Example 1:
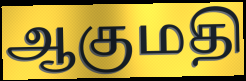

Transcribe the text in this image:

ஆகுமதி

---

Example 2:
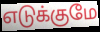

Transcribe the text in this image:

எடுக்குமே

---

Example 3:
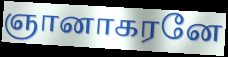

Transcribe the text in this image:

ஞானாகரனே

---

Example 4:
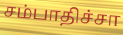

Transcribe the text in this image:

சம்பாதிச்சா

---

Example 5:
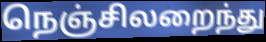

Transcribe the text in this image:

நெஞ்சிலறைந்து